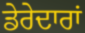
ਡੇਰੇਦਾਰਾਂ